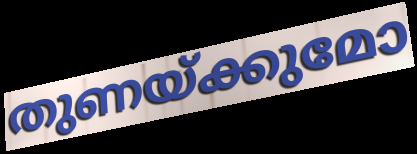
തുണയ്ക്കുമോ